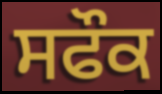
ਸਫੌਕ